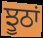
ਝੂਠਾਂ